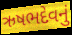
ઋષભદેવનું